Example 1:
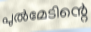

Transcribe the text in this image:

പുൽമേടിന്റെ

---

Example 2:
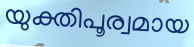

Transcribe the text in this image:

യുക്തിപൂര്വമായ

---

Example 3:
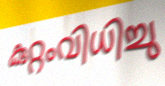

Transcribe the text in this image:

കുറ്റംവിധിച്ചു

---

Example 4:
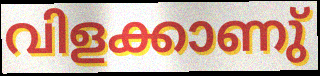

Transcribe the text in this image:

വിളക്കാണു്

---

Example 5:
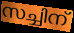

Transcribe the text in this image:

സച്ചിന്